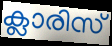
ക്ലാരിസ്